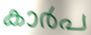
കാർപ